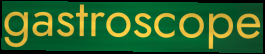
gastroscope